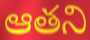
ఆతని